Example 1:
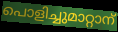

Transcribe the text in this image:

പൊളിച്ചുമാറ്റാന്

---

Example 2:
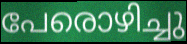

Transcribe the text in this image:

പേരൊഴിച്ചു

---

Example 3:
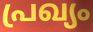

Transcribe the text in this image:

പ്രഖ്യം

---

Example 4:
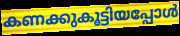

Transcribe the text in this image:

കണക്കുകൂട്ടിയപ്പോൾ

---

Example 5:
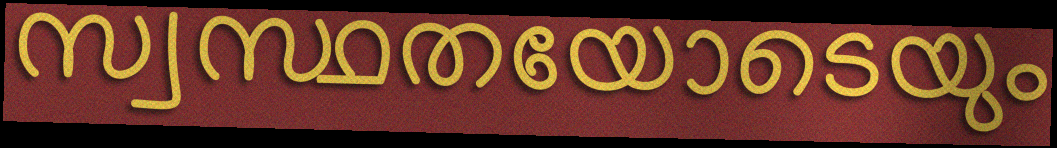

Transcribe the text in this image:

സ്വസ്ഥതയോടെയും